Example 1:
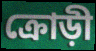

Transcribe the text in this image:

ক্রোড়ী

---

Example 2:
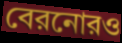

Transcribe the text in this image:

বেরনোরও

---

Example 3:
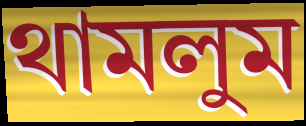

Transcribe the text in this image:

থামলুম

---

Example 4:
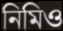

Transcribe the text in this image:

নিমিও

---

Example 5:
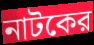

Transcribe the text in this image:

নাটকের